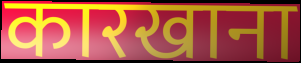
कारखाना